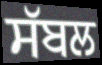
ਸੱਬਲ